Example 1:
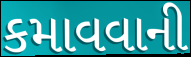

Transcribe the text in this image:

કમાવવાની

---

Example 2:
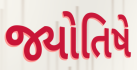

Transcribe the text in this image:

જ્યોતિષે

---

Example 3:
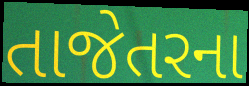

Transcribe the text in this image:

તાજેતરના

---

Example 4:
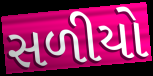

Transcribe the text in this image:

સળીયો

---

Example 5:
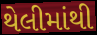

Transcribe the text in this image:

થેલીમાંથી